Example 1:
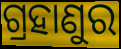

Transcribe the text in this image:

ଗ୍ରହାଣୁର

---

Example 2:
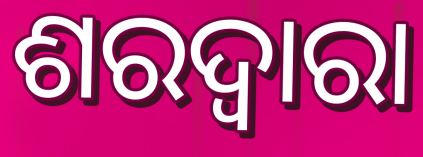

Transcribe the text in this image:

ଶରଦ୍ୱାରା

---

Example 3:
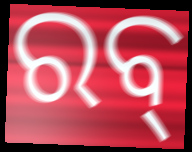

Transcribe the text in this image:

ରବ୍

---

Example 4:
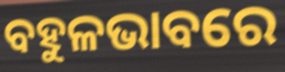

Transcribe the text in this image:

ବହୁଳଭାବରେ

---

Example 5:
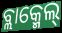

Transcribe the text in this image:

ବ୍ଲାକ୍ମେଲ୍